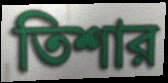
তিশার